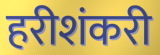
हरीशंकरी